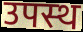
उपस्थ